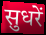
सुधरें